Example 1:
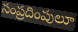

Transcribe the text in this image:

సంప్రదింపులూ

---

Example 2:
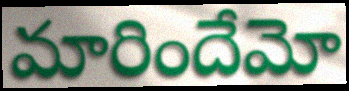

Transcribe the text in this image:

మారిందేమో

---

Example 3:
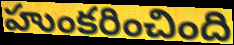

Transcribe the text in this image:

హుంకరించింది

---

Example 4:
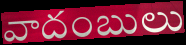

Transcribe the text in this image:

వాదంబులు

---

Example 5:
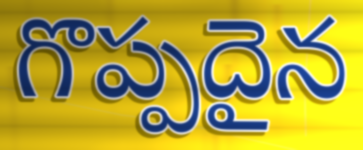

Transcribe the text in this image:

గొప్పదైన